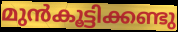
മുൻകൂട്ടിക്കണ്ടു